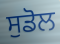
ਸੁਡੋਲ